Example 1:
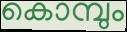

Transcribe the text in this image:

കൊമ്പും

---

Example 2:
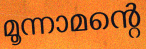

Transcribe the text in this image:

മൂന്നാമന്റെ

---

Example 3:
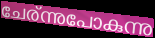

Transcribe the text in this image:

ചേര്ന്നുപോകുന്നു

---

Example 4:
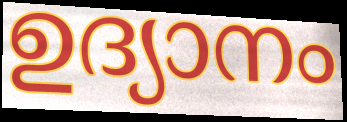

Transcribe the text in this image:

ഉദ്യാനം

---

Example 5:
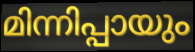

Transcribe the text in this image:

മിന്നിപ്പായും